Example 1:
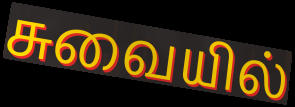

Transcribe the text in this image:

சுவையில்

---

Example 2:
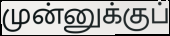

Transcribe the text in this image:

முன்னுக்குப்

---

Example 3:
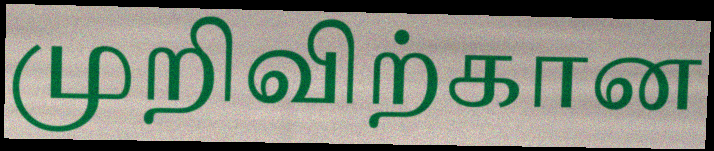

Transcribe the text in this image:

முறிவிற்கான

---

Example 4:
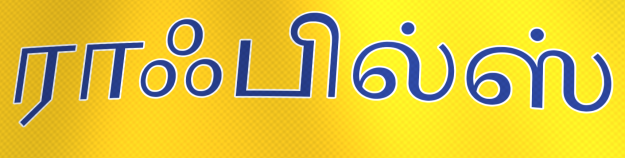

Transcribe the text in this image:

ராஃபில்ஸ்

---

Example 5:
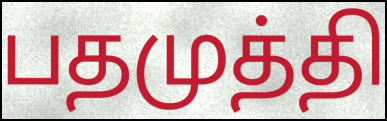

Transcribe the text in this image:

பதமுத்தி